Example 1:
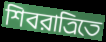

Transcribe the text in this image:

শিবরাত্রিতে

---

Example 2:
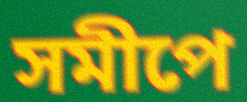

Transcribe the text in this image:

সমীপে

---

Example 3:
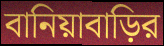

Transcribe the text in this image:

বানিয়াবাড়ির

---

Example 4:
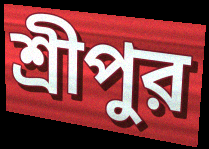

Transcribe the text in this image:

শ্রীপুর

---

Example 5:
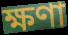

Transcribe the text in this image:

ক্ষণা